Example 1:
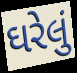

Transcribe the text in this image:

ઘરેલું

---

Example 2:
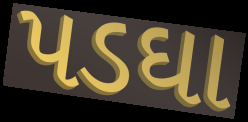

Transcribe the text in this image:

પડઘા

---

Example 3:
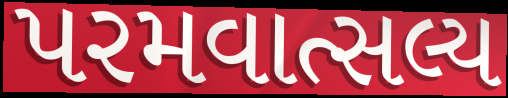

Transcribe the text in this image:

પરમવાત્સલ્ય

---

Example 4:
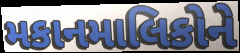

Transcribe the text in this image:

મકાનમાલિકોને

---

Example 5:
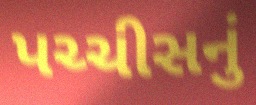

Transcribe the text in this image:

પચ્ચીસનું